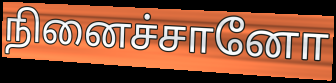
நினைச்சானோ